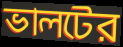
ভালটের